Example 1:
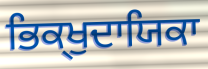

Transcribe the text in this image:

ਭਿਕ੍ਖੁਦਾਯਿਕਾ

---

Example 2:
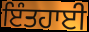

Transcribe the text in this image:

ਇੰਤਹਾਈ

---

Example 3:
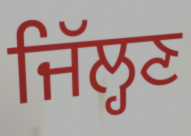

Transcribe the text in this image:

ਜਿੱਲ੍ਹਣ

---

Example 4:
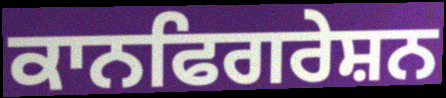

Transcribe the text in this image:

ਕਾਨਫਿਗਰੇਸ਼ਨ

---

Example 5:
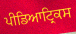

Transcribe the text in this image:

ਪੀਡਿਆਟ੍ਰਿਕਸ